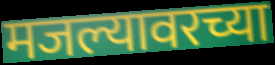
मजल्यावरच्या